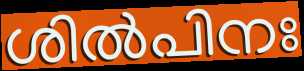
ശിൽപിനഃ